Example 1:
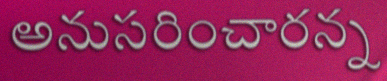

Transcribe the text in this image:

అనుసరించారన్న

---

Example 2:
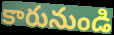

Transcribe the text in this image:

కారునుండి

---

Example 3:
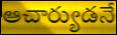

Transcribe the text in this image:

ఆచార్యుడనే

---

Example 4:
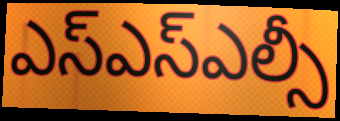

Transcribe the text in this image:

ఎస్ఎస్ఎల్సీ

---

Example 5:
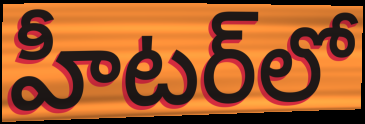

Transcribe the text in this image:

హీటర్‌లో